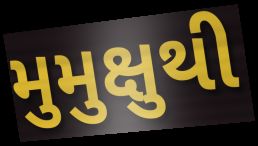
મુમુક્ષુથી